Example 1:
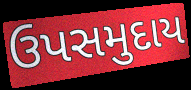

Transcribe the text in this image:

ઉપસમુદાય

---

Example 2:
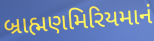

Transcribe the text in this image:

બ્રાહ્મણમિરિયમાનં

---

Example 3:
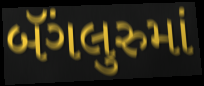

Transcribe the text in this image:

બૅંગલુરુમાં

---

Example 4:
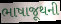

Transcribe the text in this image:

ભાષાજૂથની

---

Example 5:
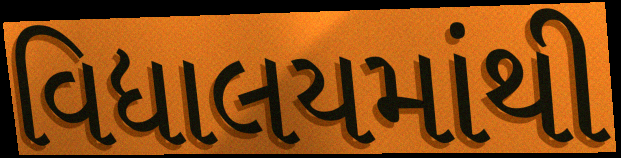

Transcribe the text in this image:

વિદ્યાલયમાંથી